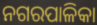
ନଗରପାଳିକା